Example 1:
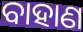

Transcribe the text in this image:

ବାହାଣ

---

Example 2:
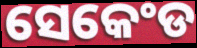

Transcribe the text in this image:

ସେକେଂଡ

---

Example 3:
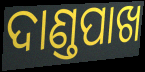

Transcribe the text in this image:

ଦାଣ୍ଡପାଖ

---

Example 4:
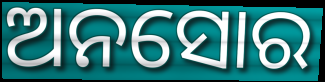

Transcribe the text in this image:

ଅନସୋର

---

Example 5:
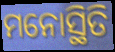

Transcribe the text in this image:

ମନୋସ୍ଥିତି